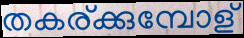
തകര്ക്കുമ്പോള്